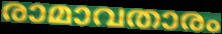
രാമാവതാരം